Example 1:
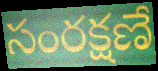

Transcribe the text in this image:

సంరక్షణే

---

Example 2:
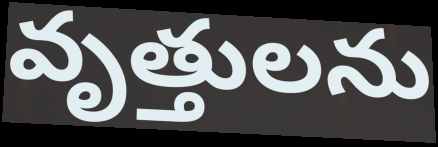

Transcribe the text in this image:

వృత్తులను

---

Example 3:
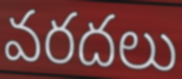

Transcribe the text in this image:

వరదలు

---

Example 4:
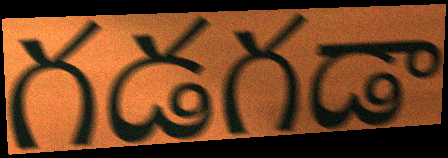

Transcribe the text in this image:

గడగడా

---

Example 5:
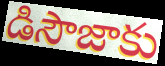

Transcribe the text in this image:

డిసౌజాకు